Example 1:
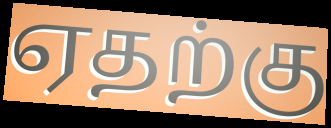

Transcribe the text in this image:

ஏதற்கு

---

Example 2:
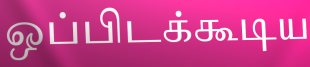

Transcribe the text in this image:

ஒப்பிடக்கூடிய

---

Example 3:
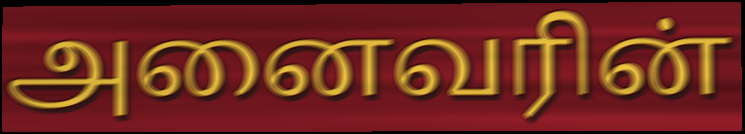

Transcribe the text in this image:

அனைவரின்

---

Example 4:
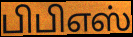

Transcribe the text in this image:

பிபிஎஸ்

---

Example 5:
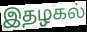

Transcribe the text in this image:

இதழகல்